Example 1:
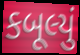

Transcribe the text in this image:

કબૂલ્યું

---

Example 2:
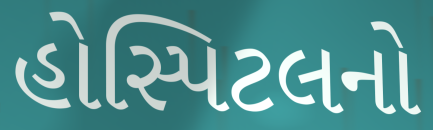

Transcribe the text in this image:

હોસ્પિટલનો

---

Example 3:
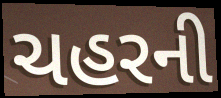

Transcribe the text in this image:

ચહરની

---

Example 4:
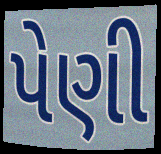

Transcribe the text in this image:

પેણી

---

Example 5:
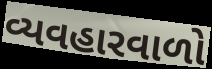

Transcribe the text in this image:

વ્યવહારવાળો